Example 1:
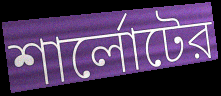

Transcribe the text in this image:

শার্লোটের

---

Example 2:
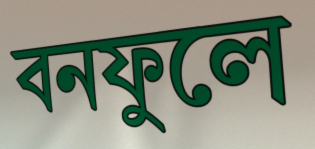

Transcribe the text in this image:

বনফুলে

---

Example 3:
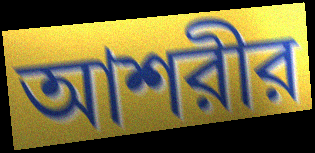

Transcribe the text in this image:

আশরীর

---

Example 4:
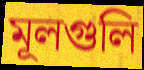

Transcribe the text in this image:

মূলগুলি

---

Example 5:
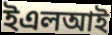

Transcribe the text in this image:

ইএলআই